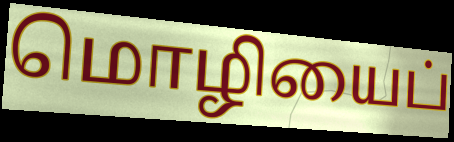
மொழியைப்